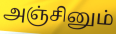
அஞ்சினும்